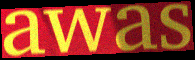
awas